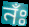
নঁঃ